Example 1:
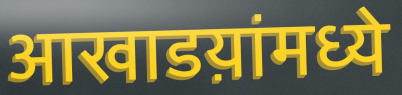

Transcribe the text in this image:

आखाडय़ांमध्ये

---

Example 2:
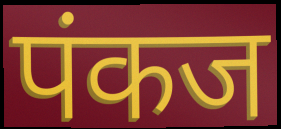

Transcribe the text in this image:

पंकज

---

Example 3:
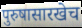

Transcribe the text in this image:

पुरुषासारखेच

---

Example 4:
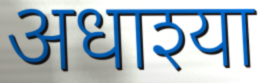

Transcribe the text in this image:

अधाश्या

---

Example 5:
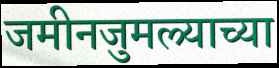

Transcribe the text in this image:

जमीनजुमल्याच्या